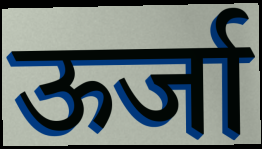
ऊर्जा